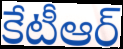
కేటీఆర్